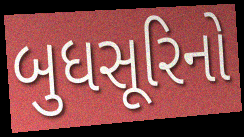
બુધસૂરિનો